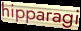
hipparagi